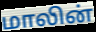
மாலின்